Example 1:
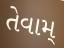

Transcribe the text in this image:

તેવામ્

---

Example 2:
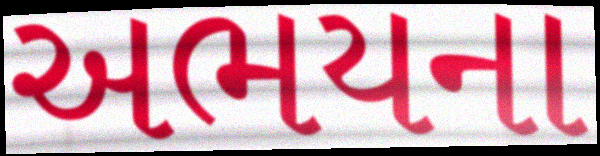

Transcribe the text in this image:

અભયના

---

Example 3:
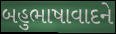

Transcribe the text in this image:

બહુભાષાવાદને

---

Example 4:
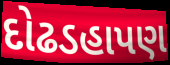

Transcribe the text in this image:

દોઢડહાપણ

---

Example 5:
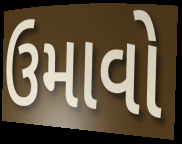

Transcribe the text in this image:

ઉમાવો